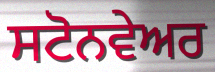
ਸਟੋਨਵੇਅਰ